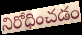
నిరోధించడం